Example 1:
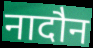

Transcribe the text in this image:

नादौन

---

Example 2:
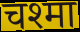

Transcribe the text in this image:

चश्मा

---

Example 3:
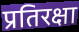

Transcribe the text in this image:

प्रतिरक्षा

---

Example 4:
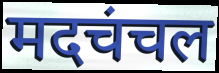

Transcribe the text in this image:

मदचंचल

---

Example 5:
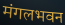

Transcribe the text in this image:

मंगलभवन